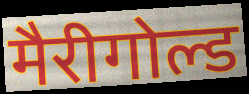
मैरीगोल्ड